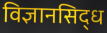
विज्ञानसिद्ध